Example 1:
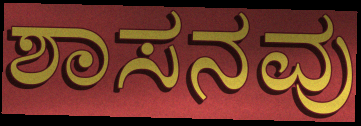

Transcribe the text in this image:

ಶಾಸನವು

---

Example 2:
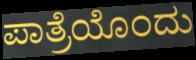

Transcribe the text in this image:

ಪಾತ್ರೆಯೊಂದು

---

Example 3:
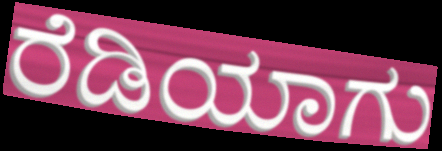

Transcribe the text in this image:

ರೆಡಿಯಾಗು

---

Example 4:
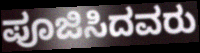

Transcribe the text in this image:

ಪೂಜಿಸಿದವರು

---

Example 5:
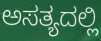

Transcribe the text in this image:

ಅಸತ್ಯದಲ್ಲಿ